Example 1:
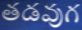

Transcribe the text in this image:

తడవుగ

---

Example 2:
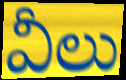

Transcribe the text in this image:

వీలు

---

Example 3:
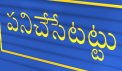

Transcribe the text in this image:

పనిచేసేటట్టు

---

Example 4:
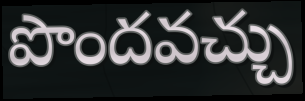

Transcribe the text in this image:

పొందవచ్చు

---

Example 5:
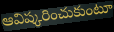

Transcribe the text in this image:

ఆవిష్కరించుకుంటూ